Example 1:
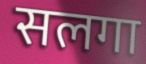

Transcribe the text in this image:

सलगा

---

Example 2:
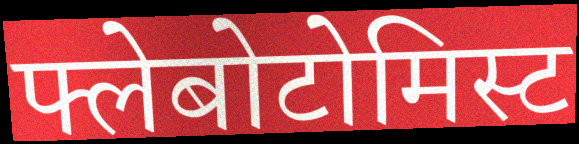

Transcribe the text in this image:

फ्लेबोटोमिस्ट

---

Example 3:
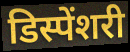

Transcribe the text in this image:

डिस्पेंशरी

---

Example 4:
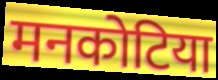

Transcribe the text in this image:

मनकोटिया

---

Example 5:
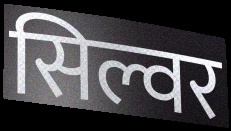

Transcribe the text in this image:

सिल्वर